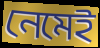
নেমেই